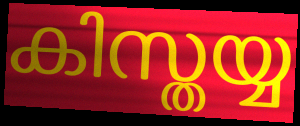
കിസ്തയ്യ